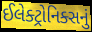
ઈલેક્ટ્રોનિક્સનું